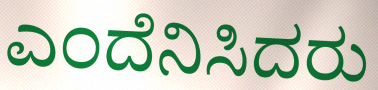
ಎಂದೆನಿಸಿದರು